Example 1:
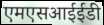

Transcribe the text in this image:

एमएसआईईडी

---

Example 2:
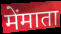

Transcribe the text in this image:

मेंमाता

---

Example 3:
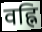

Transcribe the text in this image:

वह्नि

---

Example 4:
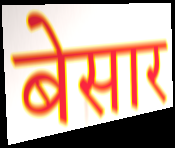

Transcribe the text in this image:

बेसार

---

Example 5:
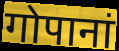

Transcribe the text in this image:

गोपानां